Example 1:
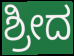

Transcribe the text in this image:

ಶ್ರೀದ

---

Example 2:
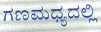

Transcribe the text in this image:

ಗಣಮಧ್ಯದಲ್ಲಿ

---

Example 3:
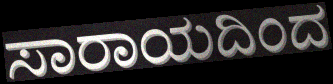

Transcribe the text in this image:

ಸಾರಾಯದಿಂದ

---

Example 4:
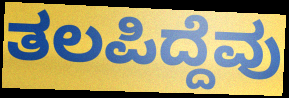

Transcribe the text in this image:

ತಲಪಿದ್ದೆವು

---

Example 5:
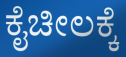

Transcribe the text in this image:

ಕೈಚೀಲಕ್ಕೆ